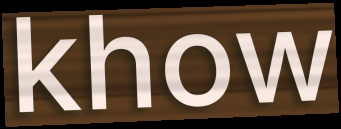
khow